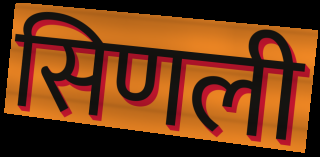
सिणली